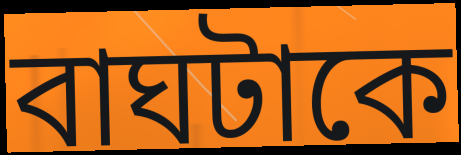
বাঘটাকে